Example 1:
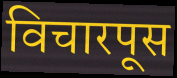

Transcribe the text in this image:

विचारपूस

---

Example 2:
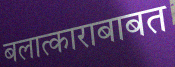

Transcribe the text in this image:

बलात्काराबाबत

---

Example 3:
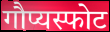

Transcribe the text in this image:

गौप्यस्फोट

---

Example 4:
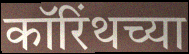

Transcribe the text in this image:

कॉरिंथच्या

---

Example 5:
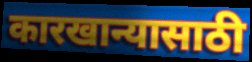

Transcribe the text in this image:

कारखान्यासाठी